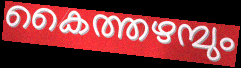
കൈത്തഴമ്പും